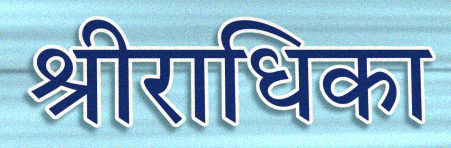
श्रीराधिका